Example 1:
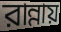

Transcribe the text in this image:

রান্নায়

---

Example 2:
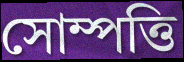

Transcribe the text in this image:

সোম্পত্তি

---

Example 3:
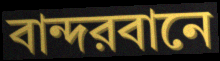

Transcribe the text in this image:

বান্দরবানে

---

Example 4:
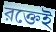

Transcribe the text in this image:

রক্তেই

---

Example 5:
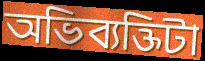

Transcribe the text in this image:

অভিব্যক্তিটা